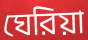
ঘেরিয়া